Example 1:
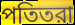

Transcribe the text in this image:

পতিতরা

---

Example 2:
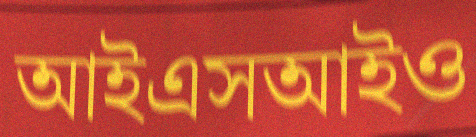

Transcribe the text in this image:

আইএসআইও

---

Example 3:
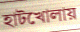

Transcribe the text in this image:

হাটখোলায়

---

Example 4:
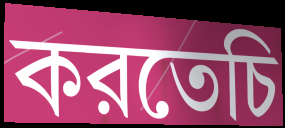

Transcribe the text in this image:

করতেচি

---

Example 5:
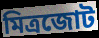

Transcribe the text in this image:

মিত্রজোট